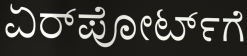
ಏರ್‌ಪೋರ್ಟ್‌ಗೆ